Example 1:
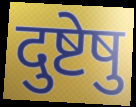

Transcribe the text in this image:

दुष्टेषु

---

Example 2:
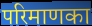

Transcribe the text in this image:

परिमाणका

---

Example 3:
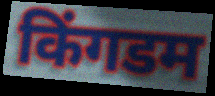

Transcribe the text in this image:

किंगडम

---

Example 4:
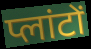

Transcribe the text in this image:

प्लांटों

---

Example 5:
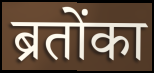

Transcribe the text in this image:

ब्रतोंका